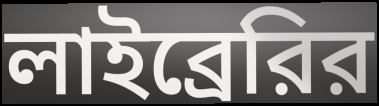
লাইব্রেরির